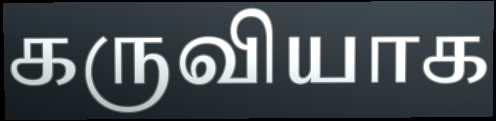
கருவியாக